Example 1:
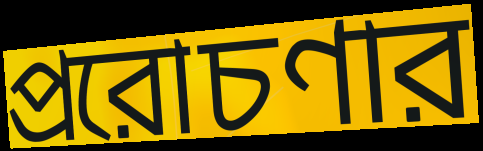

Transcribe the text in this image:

প্ররোচণার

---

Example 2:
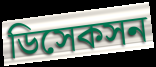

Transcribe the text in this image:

ডিসেকসন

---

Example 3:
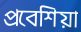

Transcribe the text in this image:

প্রবেশিয়া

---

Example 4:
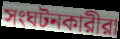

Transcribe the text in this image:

সংঘটনকারীরা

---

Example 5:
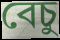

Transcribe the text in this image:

বেচু